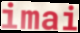
imai